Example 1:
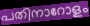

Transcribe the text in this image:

പതിനാറോളം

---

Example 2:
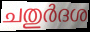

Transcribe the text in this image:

ചതുർദശ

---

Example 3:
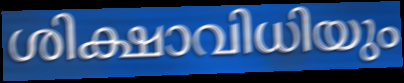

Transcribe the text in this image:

ശിക്ഷാവിധിയും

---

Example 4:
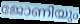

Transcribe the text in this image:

ജോണിയും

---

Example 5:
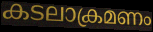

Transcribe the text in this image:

കടലാക്രമണം